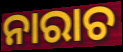
ନାରାଚ